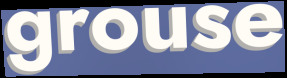
grouse